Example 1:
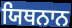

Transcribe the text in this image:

ਯਿਥਨਾਨ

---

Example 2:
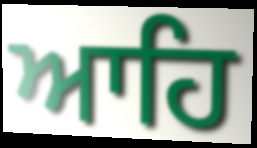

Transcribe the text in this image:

ਆਹਿ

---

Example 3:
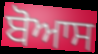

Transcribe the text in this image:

ਬੋਆਸ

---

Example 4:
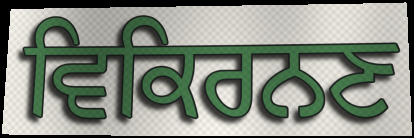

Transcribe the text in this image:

ਵਿਕਿਰਨਣ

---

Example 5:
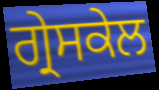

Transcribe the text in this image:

ਗ੍ਰੇਸਕੇਲ